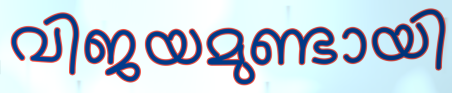
വിജയമുണ്ടായി